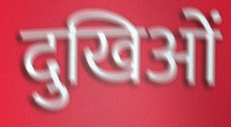
दुखिओं